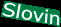
Slovin